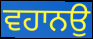
ਵਹਾਨਉ